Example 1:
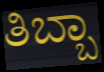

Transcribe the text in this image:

ತಿಬ್ಬಾ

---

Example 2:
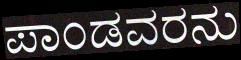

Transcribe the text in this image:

ಪಾಂಡವರನು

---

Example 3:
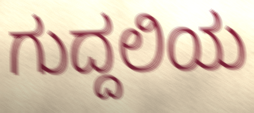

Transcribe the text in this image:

ಗುದ್ದಲಿಯ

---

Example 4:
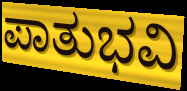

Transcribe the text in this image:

ಪಾತುಭವಿ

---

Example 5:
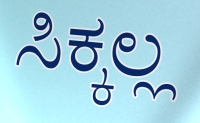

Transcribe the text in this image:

ಸಿಕ್ಕಲ್ಲ